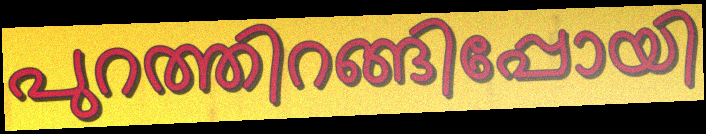
പുറത്തിറങ്ങിപ്പോയി